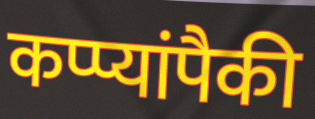
कप्प्यांपैकी